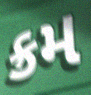
ક્રમ